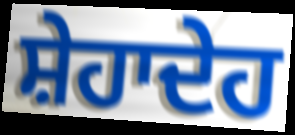
ਸ਼ੇਹਾਦੇਹ